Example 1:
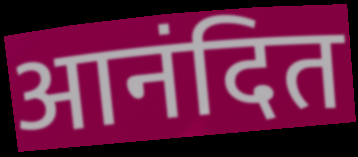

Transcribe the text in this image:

आनंदित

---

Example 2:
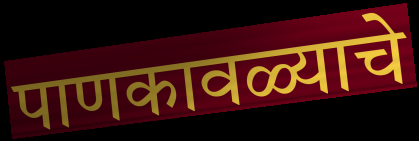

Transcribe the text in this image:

पाणकावळ्याचे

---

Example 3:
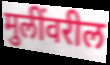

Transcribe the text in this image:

मुलींवरील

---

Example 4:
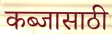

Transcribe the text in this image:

कब्जासाठी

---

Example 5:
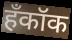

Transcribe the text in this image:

हँकॉक